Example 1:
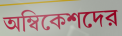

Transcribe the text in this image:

অম্বিকেশদের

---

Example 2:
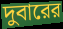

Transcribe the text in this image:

দুবারের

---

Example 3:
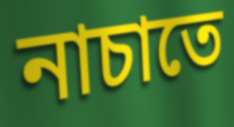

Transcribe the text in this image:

নাচাতে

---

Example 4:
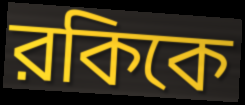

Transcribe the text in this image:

রকিকে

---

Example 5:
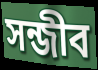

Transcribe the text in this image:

সন্জীব